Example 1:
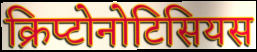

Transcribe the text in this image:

क्रिप्टोनोटिसियस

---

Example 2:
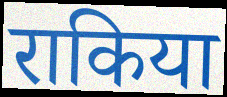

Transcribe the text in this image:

राकिया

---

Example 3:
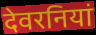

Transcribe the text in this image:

देवरनियां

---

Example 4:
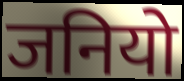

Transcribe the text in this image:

जनियो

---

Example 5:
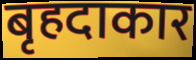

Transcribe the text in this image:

बृहदाकार